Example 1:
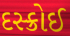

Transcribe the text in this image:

દસ્ક્રોઈ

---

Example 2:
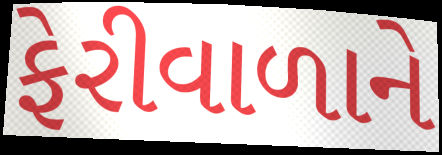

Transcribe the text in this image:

ફેરીવાળાને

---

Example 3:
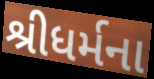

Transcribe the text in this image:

શ્રીધર્મના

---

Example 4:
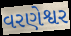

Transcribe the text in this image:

વરણેશ્વર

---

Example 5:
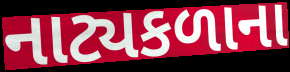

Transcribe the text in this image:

નાટ્યકળાના